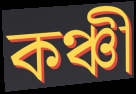
কঞ্চী